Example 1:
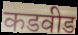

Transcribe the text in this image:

कडवीड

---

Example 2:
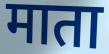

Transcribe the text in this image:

माता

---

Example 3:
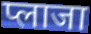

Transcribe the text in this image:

प्लाजा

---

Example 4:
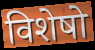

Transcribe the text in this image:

विशेषो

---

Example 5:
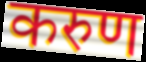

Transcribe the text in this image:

करुण